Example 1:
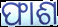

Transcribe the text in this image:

ଫାଶ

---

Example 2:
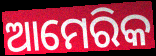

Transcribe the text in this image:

ଆମେରିକ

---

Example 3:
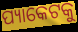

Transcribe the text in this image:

ପ୍ୟାକେଟକୁ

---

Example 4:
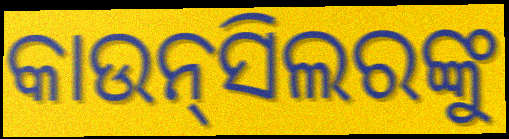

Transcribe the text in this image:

କାଉନ୍‌ସିଲରଙ୍କୁ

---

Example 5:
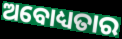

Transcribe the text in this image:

ଅବୋଧ୍ୟତାର